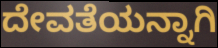
ದೇವತೆಯನ್ನಾಗಿ